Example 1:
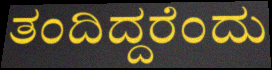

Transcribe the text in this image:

ತಂದಿದ್ದರೆಂದು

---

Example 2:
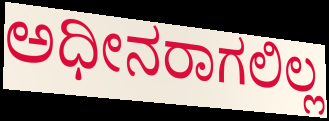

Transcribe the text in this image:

ಅಧೀನರಾಗಲಿಲ್ಲ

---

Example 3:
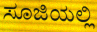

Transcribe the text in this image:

ಸೂಜಿಯಲ್ಲಿ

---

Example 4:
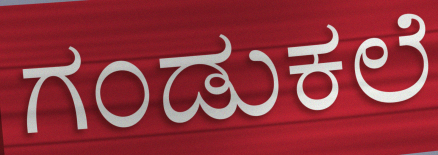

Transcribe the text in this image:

ಗಂಡುಕಲೆ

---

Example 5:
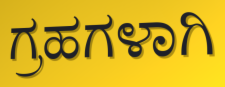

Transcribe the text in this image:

ಗ್ರಹಗಳಾಗಿ